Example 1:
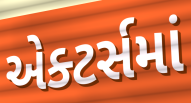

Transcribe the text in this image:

એક્ટર્સમાં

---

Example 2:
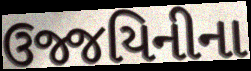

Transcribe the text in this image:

ઉજ્જયિનીના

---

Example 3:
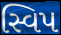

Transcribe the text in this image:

સ્વિપ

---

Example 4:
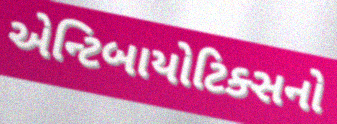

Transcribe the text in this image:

એન્ટિબાયોટિક્સનો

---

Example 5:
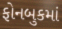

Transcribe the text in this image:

ફોનબુકમાં